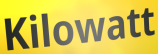
Kilowatt